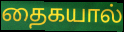
தைகயால்